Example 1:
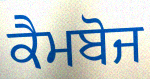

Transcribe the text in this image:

ਕੈਮਬੋਜ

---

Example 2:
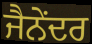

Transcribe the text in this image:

ਜੈਨੇਂਦਰ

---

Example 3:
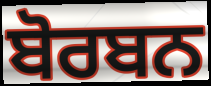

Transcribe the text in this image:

ਬੋਰਬਨ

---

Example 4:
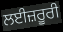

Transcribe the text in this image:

ਲਈਜ਼ਰੂਰੀ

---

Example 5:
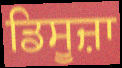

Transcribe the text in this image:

ਡਿਸੂਜ਼ਾ